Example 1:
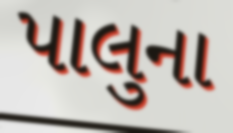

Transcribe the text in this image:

પાલુના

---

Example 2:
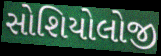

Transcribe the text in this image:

સોશિયોલોજી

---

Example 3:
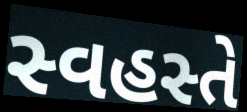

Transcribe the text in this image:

સ્વહસ્તે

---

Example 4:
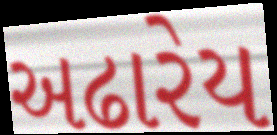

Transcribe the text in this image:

અઢારેય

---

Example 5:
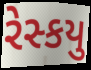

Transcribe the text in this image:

રેસ્કયુ